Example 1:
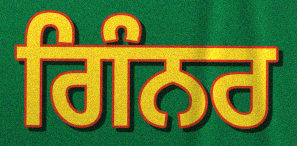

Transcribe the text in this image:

ਗਿੰਨਰ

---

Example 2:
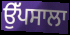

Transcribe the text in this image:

ਉੱਪਸਾਲਾ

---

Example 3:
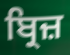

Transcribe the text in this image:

ਬ੍ਰਿਜ਼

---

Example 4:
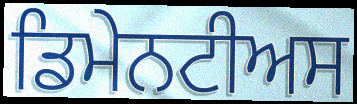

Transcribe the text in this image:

ਡਿਮੇਨਟੀਅਸ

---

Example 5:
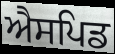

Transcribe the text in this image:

ਐਸਪਿਡ